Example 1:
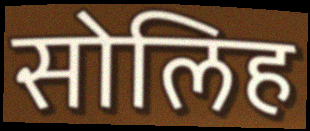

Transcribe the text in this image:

सोलिह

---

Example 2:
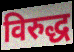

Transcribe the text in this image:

विरुद्ध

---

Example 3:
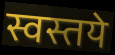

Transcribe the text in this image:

स्वस्तये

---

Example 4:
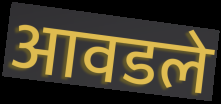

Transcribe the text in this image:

आवडले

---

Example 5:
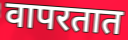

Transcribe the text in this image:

वापरतात